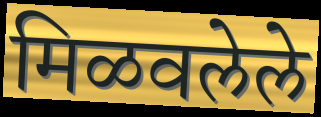
मिळवलेले